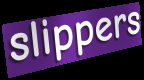
slippers